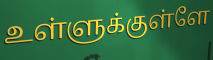
உள்ளுக்குள்ளே